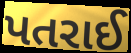
પતરાઈ